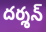
దర్శన్